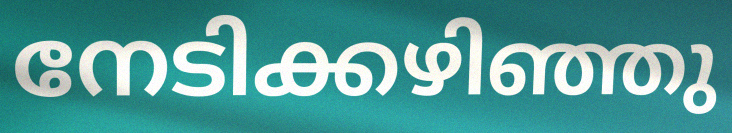
നേടിക്കഴിഞ്ഞു